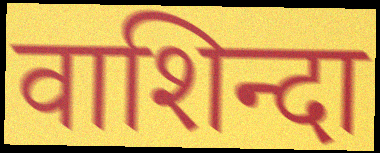
वाशिन्दा